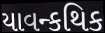
યાવન્કથિક